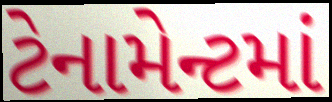
ટેનામેન્ટમાં